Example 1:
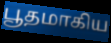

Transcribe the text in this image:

பூதமாகிய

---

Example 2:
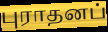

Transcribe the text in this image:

புராதனப்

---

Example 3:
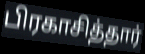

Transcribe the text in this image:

பிரகாசித்தார்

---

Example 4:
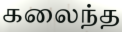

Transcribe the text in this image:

கலைந்த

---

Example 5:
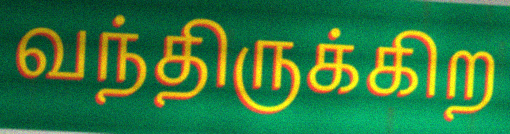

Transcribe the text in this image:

வந்திருக்கிற